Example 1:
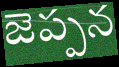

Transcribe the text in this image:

జెప్పన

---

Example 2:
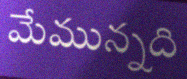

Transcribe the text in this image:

మేమున్నది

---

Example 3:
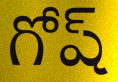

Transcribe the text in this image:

గోష్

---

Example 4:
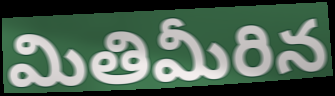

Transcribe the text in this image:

మితిమీరిన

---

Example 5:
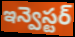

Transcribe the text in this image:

ఇన్వెస్టర్